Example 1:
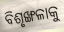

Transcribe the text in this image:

ବିଶୃଙ୍ଖଳାକୁ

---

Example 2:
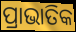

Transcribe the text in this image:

ପ୍ରାଭାତିକ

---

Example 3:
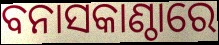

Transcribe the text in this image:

ବନାସକାଣ୍ଠାରେ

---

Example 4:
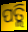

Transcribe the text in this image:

ପତ୍ଲି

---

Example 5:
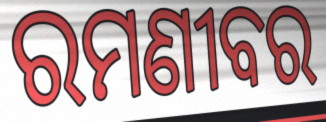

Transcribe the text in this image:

ରମଣୀବର